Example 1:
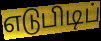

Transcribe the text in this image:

எடுபிடிப்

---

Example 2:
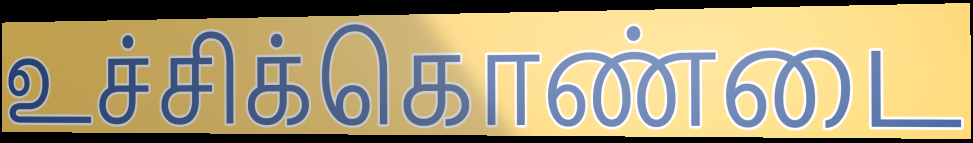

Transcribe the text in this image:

உச்சிக்கொண்டை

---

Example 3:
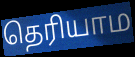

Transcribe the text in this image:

தெரியாம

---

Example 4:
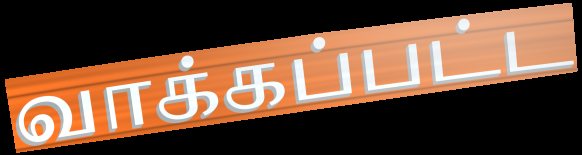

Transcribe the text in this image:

வாக்கப்பட்ட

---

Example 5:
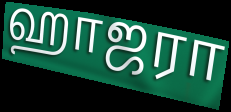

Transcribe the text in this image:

ஹாஜரா